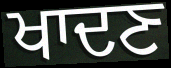
ਖਾਦਣ